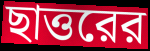
ছাত্তরের